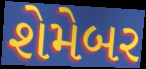
શેમેબર